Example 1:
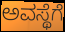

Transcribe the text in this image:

ಅವಸ್ಥೆಗೆ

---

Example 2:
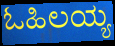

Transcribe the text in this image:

ಓಹಿಲಯ್ಯ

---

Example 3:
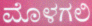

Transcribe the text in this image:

ಮೊಳಗಲಿ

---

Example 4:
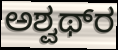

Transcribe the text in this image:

ಅಶ್ವಥ್‌ರ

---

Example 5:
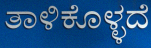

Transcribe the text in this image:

ತಾಳಿಕೊಳ್ಳದೆ